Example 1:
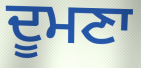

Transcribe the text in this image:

ਦੂਮਣਾ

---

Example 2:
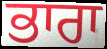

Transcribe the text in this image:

ਭਾਰਾ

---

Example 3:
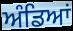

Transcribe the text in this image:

ਅੰਡਿਆਂ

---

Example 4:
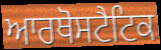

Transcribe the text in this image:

ਆਰਥੋਸਟੈਟਿਕ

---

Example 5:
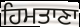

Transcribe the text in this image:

ਹਿਮਤਾਣਾ